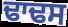
ਢਾਢਸ